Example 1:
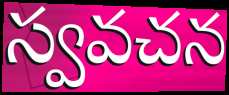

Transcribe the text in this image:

స్వవచన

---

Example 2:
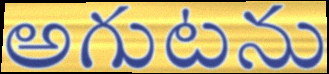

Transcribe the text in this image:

అగుటను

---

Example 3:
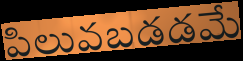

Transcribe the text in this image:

పిలువబడడమే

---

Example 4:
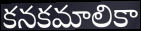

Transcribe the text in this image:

కనకమాలికా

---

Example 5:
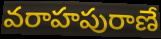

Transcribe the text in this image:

వరాహపురాణే